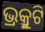
ଭ୍ର୍ରୁକୁଟି